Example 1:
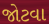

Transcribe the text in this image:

જોટવા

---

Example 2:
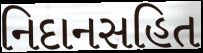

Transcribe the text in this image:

નિદાનસહિત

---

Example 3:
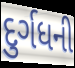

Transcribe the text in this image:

દુર્ગધની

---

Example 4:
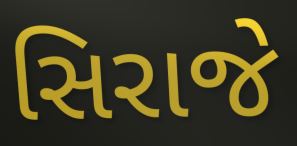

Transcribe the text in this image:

સિરાજે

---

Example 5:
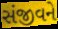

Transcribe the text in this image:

સંજીવને